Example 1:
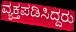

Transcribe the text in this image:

ವ್ಯಕ್ತಪಡಿಸಿದ್ದರು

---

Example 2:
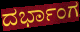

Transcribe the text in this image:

ದರ್ಭಾಂಗ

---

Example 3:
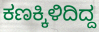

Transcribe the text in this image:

ಕಣಕ್ಕಿಳಿದಿದ್ದ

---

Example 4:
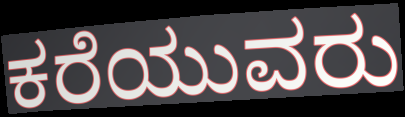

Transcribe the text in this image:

ಕರೆಯುವರು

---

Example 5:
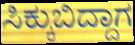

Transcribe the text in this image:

ಸಿಕ್ಕುಬಿದ್ದಾಗ